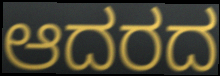
ಆದರದ